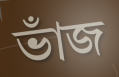
ভাঁজ